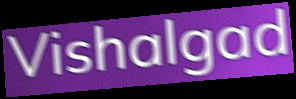
Vishalgad